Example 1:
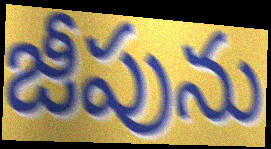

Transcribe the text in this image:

జీపును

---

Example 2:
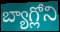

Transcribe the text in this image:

బ్యాగ్లోని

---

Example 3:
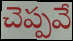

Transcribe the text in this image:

చెప్పవే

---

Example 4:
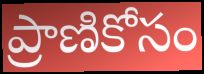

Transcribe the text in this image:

ప్రాణికోసం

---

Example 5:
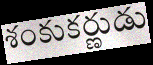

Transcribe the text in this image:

శంకుకర్ణుడు